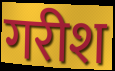
गरीश